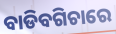
ବାଡିବଗିଚାରେ